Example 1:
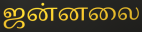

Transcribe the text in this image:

ஜன்னலை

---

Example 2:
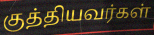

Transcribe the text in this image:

குத்தியவர்கள்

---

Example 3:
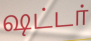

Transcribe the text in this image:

ஷட்டர்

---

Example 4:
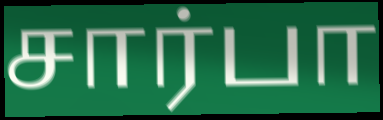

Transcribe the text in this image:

சார்பா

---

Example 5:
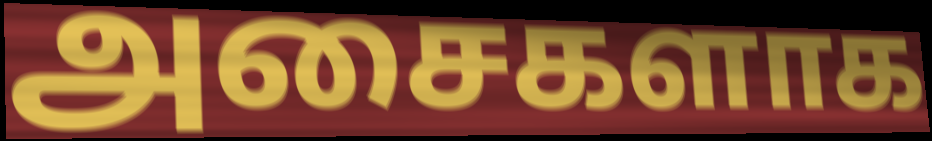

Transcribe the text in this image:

அசைகளாக